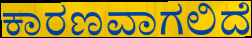
ಕಾರಣವಾಗಲಿದೆ